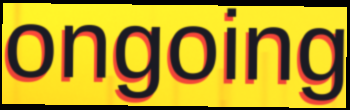
ongoing